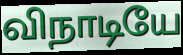
விநாடியே